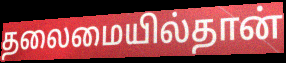
தலைமையில்தான்